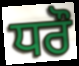
ਧਰੌ